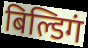
बिल्डिगं